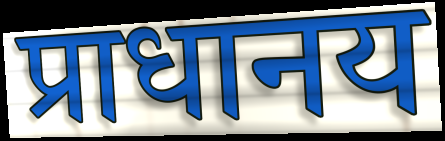
प्राधानय